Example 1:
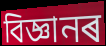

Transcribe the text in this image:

বিজ্ঞানৰ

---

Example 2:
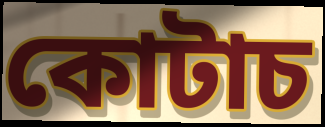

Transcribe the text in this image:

কোটাচ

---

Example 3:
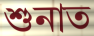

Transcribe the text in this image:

শুনাত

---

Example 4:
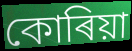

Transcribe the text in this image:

কোৰিয়া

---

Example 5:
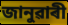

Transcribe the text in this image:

জানুৱাৰী